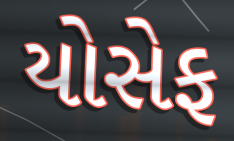
યોસેફ